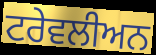
ਟਰੇਵਲੀਅਨ